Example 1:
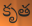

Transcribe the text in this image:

కృత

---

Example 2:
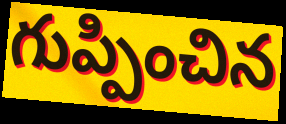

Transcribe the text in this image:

గుప్పించిన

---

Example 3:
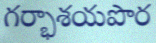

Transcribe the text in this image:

గర్భాశయపొర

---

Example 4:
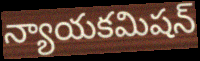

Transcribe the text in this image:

న్యాయకమిషన్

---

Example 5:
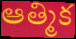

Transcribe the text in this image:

ఆత్మిక